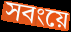
সবংয়ে